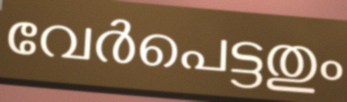
വേർപെട്ടതും